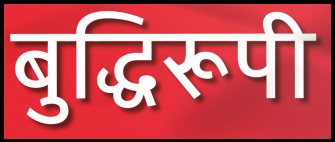
बुद्धिरूपी